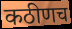
कठीणच